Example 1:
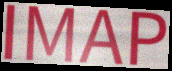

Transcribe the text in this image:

IMAP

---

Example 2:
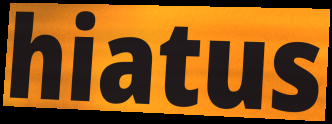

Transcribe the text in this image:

hiatus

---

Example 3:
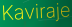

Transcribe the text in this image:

Kaviraje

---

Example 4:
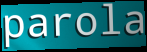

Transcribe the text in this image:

parola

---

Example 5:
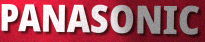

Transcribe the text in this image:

PANASONIC